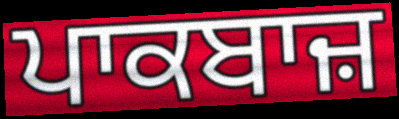
ਪਾਕਬਾਜ਼